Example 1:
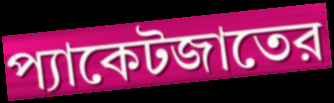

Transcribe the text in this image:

প্যাকেটজাতের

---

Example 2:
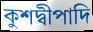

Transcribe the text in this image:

কুশদ্বীপাদি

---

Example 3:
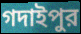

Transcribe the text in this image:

গদাইপুর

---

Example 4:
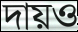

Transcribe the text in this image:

দায়ও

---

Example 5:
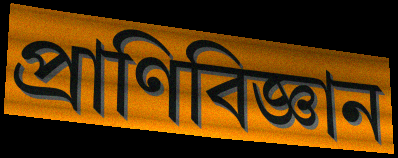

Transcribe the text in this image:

প্রাণিবিজ্ঞান